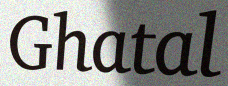
Ghatal